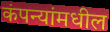
कंपन्यांमधील